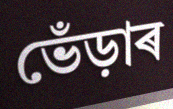
ভেঁড়াৰ